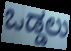
ಒಡ್ಡಲು